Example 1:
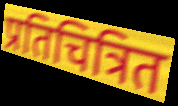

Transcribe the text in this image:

प्रतिचित्रित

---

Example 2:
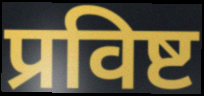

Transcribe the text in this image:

प्रविष्ट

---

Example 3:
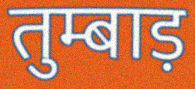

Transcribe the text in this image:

तुम्बाड़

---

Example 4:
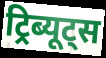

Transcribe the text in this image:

ट्रिब्यूट्स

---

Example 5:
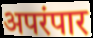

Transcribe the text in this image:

अपरंपार